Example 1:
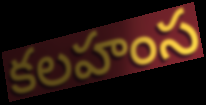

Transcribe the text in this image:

కలహంస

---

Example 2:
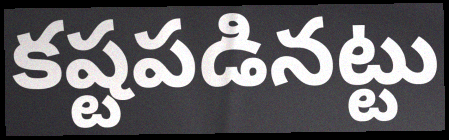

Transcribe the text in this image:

కష్టపడినట్టు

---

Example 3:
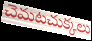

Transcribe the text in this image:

చెమటచుక్కలు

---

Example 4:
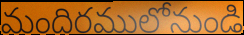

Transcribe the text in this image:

మందిరములోనుండి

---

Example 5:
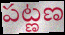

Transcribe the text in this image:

పట్ణణ